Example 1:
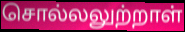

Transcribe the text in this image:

சொல்லலுற்றாள்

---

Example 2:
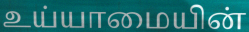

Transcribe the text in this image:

உய்யாமையின்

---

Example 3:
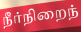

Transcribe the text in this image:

நீர்நிறைந்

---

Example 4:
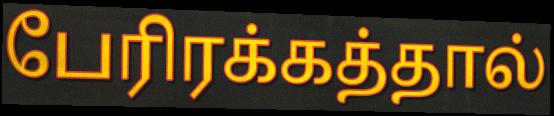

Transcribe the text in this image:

பேரிரக்கத்தால்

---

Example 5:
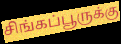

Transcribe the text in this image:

சிங்கப்பூருக்கு